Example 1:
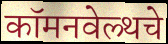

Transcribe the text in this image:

कॉमनवेल्थचे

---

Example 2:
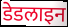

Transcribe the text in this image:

डेडलाइन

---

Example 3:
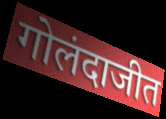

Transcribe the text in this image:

गोलंदाजीत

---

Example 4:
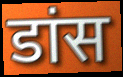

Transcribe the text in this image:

डांस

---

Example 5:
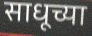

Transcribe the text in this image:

साधूच्या